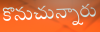
కొనుచున్నారు